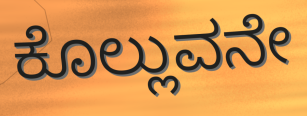
ಕೊಲ್ಲುವನೇ